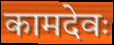
कामदेवः